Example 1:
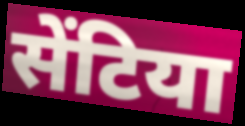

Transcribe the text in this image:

सेंटिया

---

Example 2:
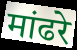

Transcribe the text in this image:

मांढरे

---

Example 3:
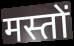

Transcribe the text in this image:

मस्तों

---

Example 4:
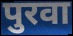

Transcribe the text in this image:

पुरवा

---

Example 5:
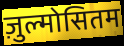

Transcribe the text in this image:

ज़ुल्मोसितम